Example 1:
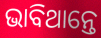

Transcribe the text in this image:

ଭାବିଥାନ୍ତେ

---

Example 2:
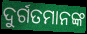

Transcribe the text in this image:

ଦୁର୍ଗତମାନଙ୍କ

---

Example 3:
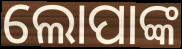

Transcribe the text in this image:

ଲୋପାଙ୍କ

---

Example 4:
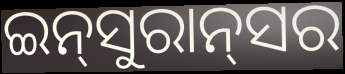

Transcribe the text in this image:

ଇନ୍‍ସୁରାନ୍‍ସର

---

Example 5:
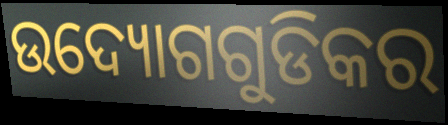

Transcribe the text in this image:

ଉଦ୍ୟୋଗଗୁଡିକର